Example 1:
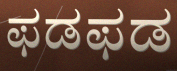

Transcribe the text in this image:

ಫಡಫಡ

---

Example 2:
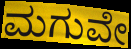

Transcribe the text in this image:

ಮಗುವೇ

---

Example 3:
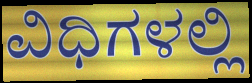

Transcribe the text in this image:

ವಿಧಿಗಳಲ್ಲಿ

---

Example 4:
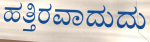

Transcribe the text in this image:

ಹತ್ತಿರವಾದುದು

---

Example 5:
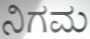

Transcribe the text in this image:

ನಿಗಮ